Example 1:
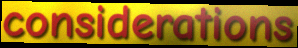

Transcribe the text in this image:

considerations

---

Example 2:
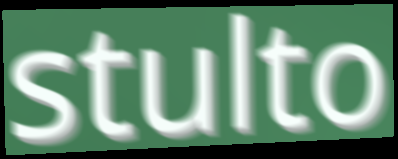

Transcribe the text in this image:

stulto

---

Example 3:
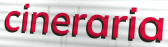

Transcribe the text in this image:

cineraria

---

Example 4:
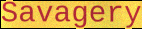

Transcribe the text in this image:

Savagery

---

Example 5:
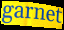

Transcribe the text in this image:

garnet